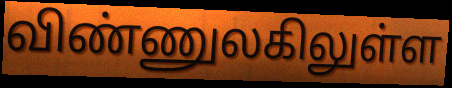
விண்ணுலகிலுள்ள